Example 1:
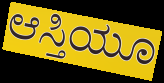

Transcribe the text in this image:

ಆಸ್ತಿಯೂ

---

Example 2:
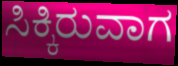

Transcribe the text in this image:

ಸಿಕ್ಕಿರುವಾಗ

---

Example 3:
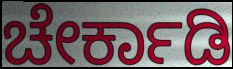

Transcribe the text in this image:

ಚೇರ್ಕಾಡಿ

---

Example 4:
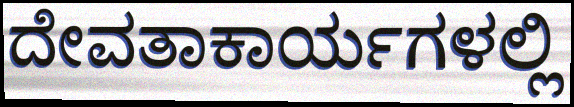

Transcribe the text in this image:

ದೇವತಾಕಾರ್ಯಗಳಲ್ಲಿ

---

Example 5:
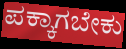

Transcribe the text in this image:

ಪಕ್ಕಾಗಬೇಕು